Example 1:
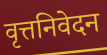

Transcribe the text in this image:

वृत्तनिवेदन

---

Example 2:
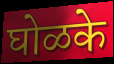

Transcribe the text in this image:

घोळके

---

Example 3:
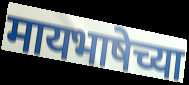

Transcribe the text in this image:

मायभाषेच्या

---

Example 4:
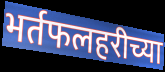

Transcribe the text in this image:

भर्तफलहरीच्या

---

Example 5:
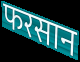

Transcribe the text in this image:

फरसान